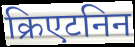
क्रिएटनिन